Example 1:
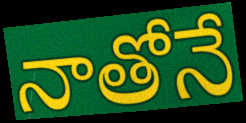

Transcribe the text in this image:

నాతోనే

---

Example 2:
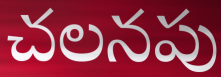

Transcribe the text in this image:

చలనపు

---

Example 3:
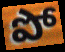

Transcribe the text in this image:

పో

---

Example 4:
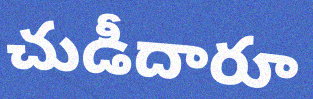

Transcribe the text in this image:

చుడీదారూ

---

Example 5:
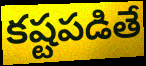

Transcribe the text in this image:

కష్టపడితే